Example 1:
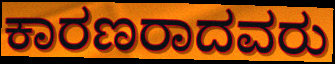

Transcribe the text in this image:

ಕಾರಣರಾದವರು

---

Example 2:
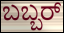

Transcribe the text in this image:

ಬಬ್ಬರ್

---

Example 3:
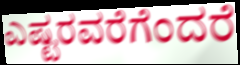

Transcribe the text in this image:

ಎಷ್ಟರವರೆಗೆಂದರೆ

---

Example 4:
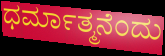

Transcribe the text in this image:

ಧರ್ಮಾತ್ಮನೆಂದು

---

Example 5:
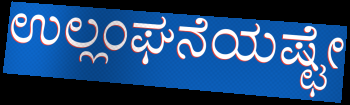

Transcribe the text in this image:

ಉಲ್ಲಂಘನೆಯಷ್ಟೇ